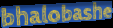
bhalobashe